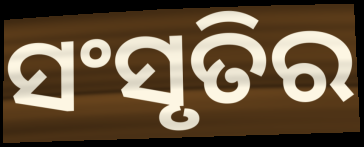
ସଂସୃତିର